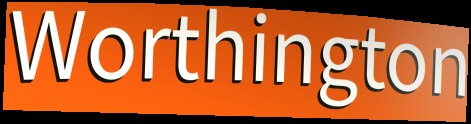
Worthington